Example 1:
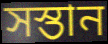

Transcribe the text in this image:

সস্তান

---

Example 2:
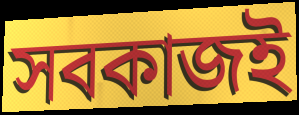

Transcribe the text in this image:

সবকাজই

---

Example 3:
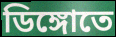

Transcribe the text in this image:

ডিঙ্গোতে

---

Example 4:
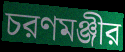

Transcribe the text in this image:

চরণমঞ্জীর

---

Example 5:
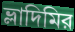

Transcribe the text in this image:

ভ্লাদিমির